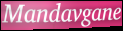
Mandavgane